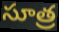
సూత్ర